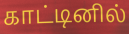
காட்டினில்